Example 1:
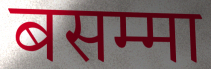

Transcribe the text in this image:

बसम्मा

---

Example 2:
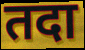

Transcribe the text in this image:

तदा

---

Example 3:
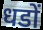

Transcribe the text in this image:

धडों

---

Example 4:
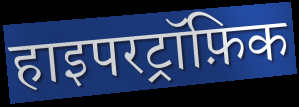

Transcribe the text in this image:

हाइपरट्रॉफ़िक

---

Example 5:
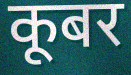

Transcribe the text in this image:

कूबर